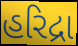
હરિદ્રા